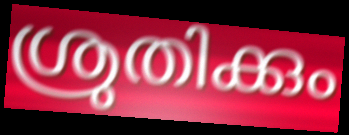
ശ്രുതിക്കും